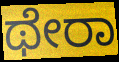
ಥೇರಾ